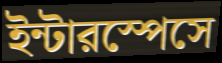
ইন্টারস্পেসে